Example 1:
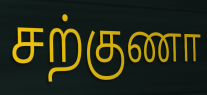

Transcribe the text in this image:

சற்குணா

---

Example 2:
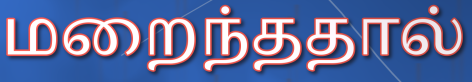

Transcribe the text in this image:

மறைந்ததால்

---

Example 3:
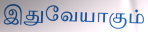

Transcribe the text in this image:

இதுவேயாகும்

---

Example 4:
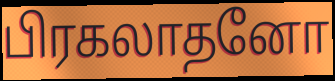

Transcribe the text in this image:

பிரகலாதனோ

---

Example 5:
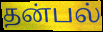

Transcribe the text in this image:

தன்பல்